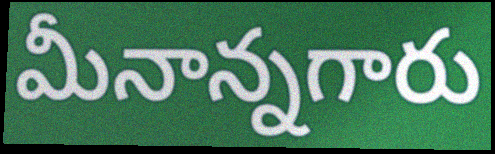
మీనాన్నగారు